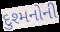
દુશ્મનોની